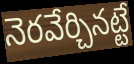
నెరవేర్చినట్టే